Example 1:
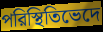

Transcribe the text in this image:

পরিস্থিতিভেদে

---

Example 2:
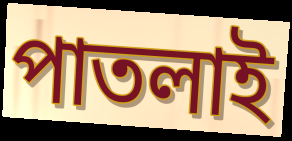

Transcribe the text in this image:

পাতলাই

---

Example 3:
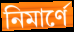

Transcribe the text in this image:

নিমার্ণে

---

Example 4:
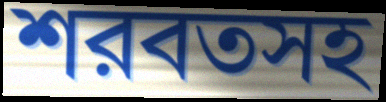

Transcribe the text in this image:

শরবতসহ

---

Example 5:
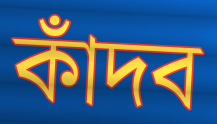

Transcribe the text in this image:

কাঁদব